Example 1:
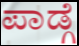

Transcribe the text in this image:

ಪಾಡ್ಗೆ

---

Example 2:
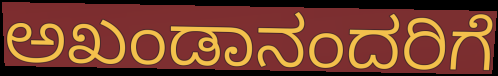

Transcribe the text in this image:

ಅಖಂಡಾನಂದರಿಗೆ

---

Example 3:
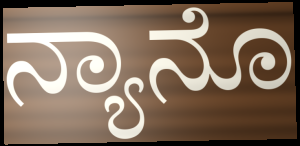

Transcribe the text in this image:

ನ್ಯಾನೊ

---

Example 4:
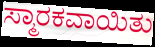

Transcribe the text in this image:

ಸ್ಮಾರಕವಾಯಿತು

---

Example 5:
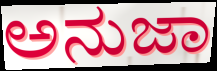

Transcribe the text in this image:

ಅನುಜಾ